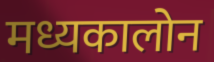
मध्यकालोन